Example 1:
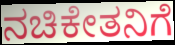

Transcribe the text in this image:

ನಚಿಕೇತನಿಗೆ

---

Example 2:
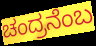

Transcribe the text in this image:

ಚಂದ್ರನೆಂಬ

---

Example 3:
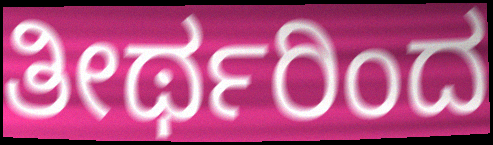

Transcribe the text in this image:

ತೀರ್ಥರಿಂದ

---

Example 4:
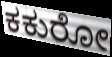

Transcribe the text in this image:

ಕಕುರೋ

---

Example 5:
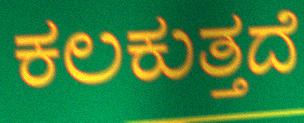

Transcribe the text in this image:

ಕಲಕುತ್ತದೆ